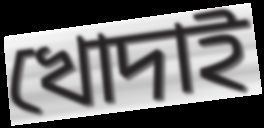
খোদাই